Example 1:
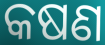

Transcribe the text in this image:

କଷଣ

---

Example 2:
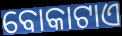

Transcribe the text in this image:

ବୋକାଟାଏ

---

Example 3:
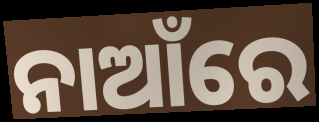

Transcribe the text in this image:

ନାଆଁରେ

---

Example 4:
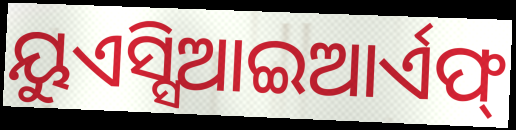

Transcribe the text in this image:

ୟୁଏସ୍ସିଆଇଆର୍ଏଫ୍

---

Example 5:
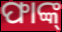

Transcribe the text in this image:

ଫାଙ୍କ୍